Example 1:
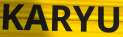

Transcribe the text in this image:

KARYU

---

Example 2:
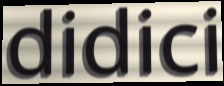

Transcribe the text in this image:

didici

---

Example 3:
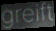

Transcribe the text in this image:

greift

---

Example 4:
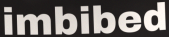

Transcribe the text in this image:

imbibed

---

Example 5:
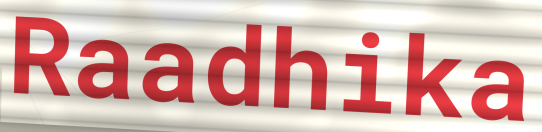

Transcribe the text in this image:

Raadhika